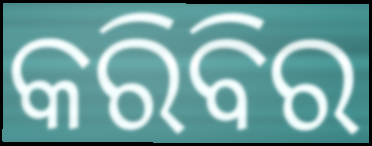
କରିବିର